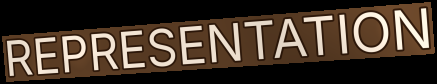
REPRESENTATION